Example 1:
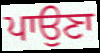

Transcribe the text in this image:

ਪਾਉਣਾ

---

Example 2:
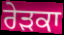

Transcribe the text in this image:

ਰੇੜਕਾ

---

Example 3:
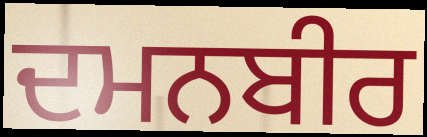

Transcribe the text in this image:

ਦਮਨਬੀਰ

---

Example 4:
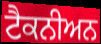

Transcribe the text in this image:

ਟੈਕਨੀਅਨ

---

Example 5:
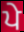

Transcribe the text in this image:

ਪੇ